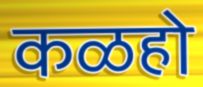
कळहो